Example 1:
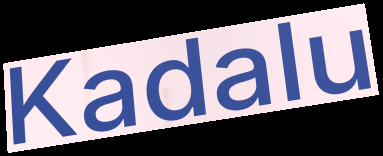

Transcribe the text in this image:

Kadalu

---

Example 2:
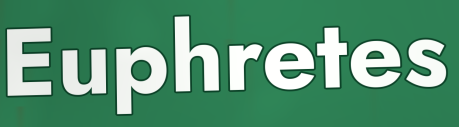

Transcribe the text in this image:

Euphretes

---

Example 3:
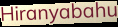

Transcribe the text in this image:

Hiranyabahu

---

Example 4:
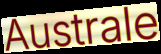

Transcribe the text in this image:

Australe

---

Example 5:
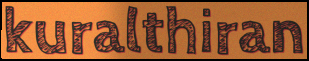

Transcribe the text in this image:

kuralthiran